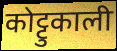
कोट्टुकाली